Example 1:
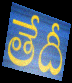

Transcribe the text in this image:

తేదీ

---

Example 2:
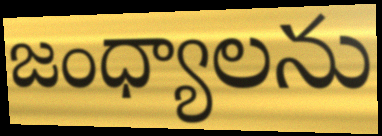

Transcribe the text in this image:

జంధ్యాలను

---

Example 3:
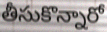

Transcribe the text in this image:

తీసుకొన్నారో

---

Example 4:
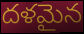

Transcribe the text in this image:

దళమైన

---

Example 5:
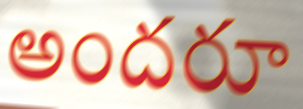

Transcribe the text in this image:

అందరూ